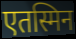
एतस्मिन